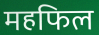
महफिल